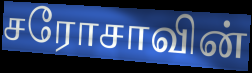
சரோசாவின்